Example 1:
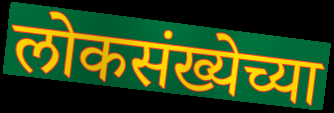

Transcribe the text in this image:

लोकसंख्येच्या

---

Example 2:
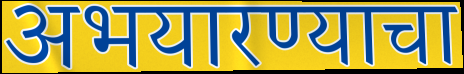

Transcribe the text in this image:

अभयारण्याचा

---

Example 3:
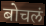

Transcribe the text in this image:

बोचलं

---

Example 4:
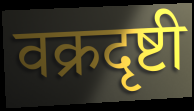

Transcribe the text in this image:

वक्रदृष्टी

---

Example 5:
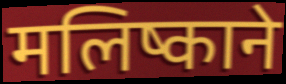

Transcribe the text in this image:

मलिष्काने